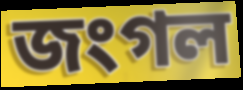
জংগল